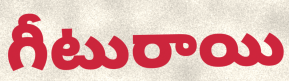
గీటురాయి